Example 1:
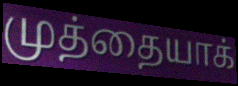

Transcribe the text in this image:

முத்தையாக்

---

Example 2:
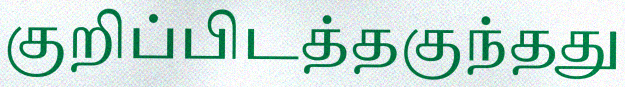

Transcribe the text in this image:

குறிப்பிடத்தகுந்தது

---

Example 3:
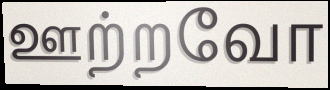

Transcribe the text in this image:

ஊற்றவோ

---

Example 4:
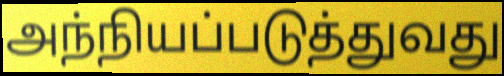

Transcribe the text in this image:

அந்நியப்படுத்துவது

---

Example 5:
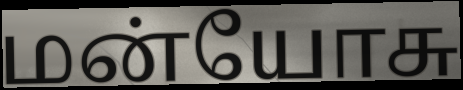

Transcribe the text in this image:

மன்யோசு